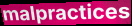
malpractices